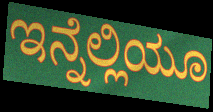
ಇನ್ನೆಲ್ಲಿಯೂ